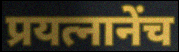
प्रयत्नानेंच